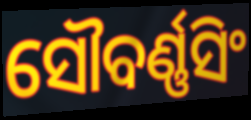
ସୌବର୍ଣ୍ଣସିଂ